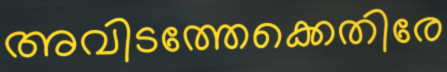
അവിടത്തേക്കെതിരേ